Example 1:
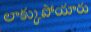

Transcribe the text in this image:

లాక్కుపోయారు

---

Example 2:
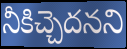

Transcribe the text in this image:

నీకిచ్చెదనని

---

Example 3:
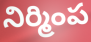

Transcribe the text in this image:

నిర్మింప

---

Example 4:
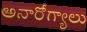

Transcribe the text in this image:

అనారోగ్యాలు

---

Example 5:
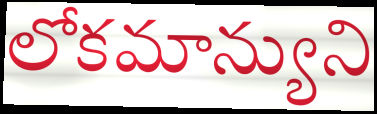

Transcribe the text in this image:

లోకమాన్యుని